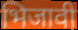
भिजावी